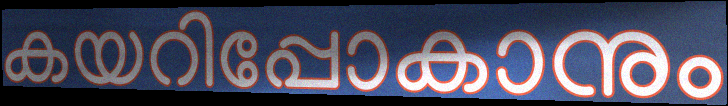
കയറിപ്പോകാനും